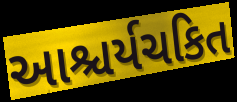
આશ્ચર્યચકિત